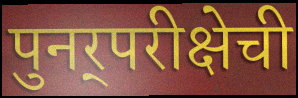
पुनर्परीक्षेची